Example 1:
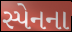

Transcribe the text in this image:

સ્પેનના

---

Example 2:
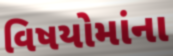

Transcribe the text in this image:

વિષયોમાંના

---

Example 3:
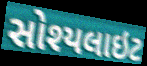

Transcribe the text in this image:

સોશ્યલાઇટ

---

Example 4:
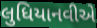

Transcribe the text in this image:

લુધિયાનવીએ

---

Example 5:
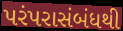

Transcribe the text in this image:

પરંપરાસંબંધથી